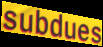
subdues